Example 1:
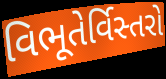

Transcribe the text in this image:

વિભૂતેર્વિસ્તરો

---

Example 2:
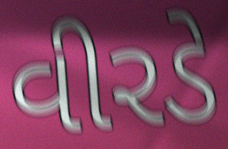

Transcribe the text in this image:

વીરડે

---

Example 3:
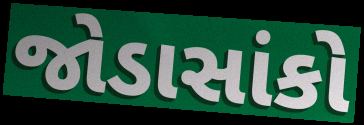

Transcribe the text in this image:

જોડાસાંકો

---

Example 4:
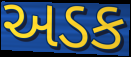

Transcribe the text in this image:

અડક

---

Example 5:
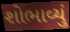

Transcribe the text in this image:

શોભાવ્યું